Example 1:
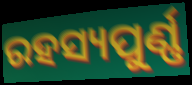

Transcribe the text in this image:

ରହସ୍ୟପୁର୍ଣ୍ଣ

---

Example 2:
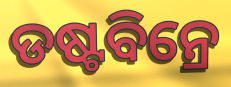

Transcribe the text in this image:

ଡଷ୍ଟବିନ୍ରେ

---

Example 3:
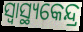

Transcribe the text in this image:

ସ୍ୱାସ୍ଥ୍ୟକେନ୍ଦ୍ର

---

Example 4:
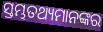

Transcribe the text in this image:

ସ୍ତମ୍ଭତଥ୍ୟମାନଙ୍କର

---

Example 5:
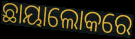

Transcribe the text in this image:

ଛାୟାଲୋକରେ